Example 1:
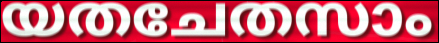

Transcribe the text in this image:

യതചേതസാം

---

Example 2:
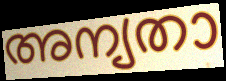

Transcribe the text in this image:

അന്യതാ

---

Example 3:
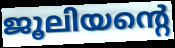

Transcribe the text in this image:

ജൂലിയന്റെ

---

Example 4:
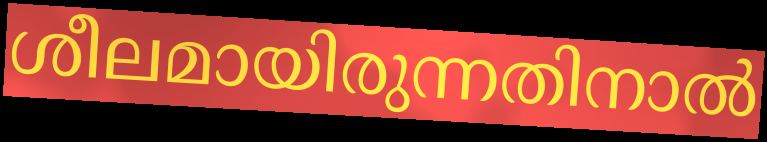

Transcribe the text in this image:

ശീലമായിരുന്നതിനാൽ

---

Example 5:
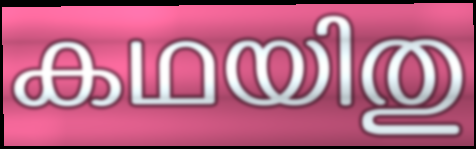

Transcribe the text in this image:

കഥയിതു